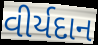
વીર્યદાન